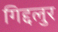
गिद्दलुर